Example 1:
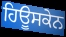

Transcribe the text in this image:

ਹਿਊਸਕੇਨ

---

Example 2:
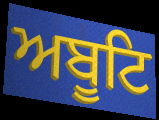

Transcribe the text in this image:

ਅਬੂਟਿ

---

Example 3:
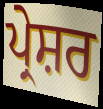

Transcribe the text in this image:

ਪ੍ਰੇਸ਼ਰ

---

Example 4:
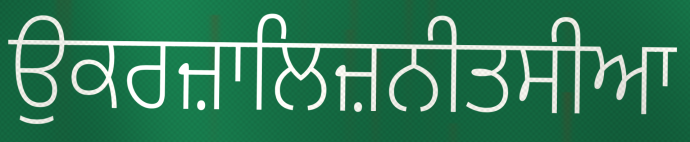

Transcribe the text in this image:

ਉਕਰਜ਼ਾਲਿਜ਼ਨੀਤਸੀਆ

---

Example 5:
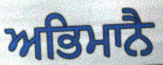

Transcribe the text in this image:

ਅਭਿਮਾਨੈ